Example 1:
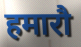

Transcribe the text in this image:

हमारौ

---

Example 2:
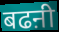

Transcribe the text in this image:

बढऩी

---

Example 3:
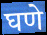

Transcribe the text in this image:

घणे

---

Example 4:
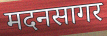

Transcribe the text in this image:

मदनसागर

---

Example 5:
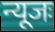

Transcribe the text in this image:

न्यूजः